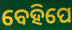
ବେହିପେ